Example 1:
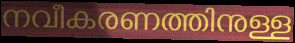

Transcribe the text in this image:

നവീകരണത്തിനുള്ള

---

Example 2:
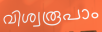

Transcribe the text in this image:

വിശ്വരൂപാം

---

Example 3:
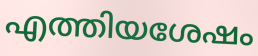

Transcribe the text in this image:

എത്തിയശേഷം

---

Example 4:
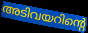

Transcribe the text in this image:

അടിവയറിന്റെ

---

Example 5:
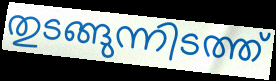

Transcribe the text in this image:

തുടങ്ങുന്നിടത്ത്